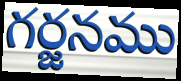
గర్జనము